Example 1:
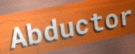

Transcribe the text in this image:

Abductor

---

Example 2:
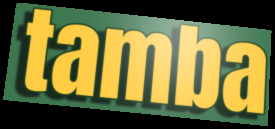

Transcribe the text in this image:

tamba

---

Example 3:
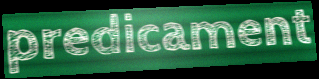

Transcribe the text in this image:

predicament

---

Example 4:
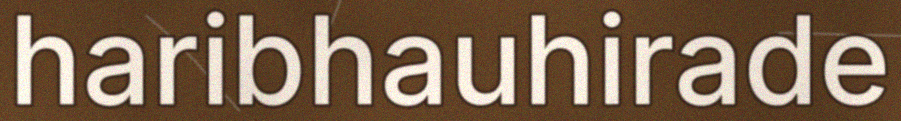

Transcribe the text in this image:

haribhauhirade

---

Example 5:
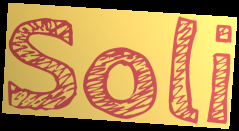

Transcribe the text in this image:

Soli